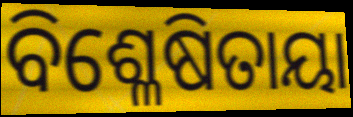
ବିଶ୍ଳେଷିତାୟା